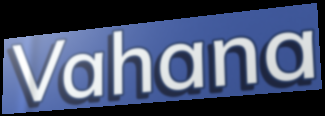
Vahana